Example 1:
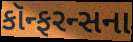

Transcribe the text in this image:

કૉન્ફરન્સના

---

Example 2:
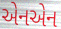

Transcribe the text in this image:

એનએન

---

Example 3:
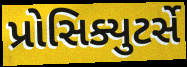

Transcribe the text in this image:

પ્રોસિક્યુટર્સે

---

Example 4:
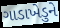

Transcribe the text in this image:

ગાડાખેડુને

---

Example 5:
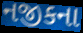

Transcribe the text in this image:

નજીકના